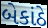
બેકાંઠે